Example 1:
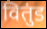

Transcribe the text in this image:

वितुंड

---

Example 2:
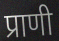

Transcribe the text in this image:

प्राणी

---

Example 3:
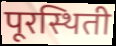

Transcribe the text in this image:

पूरस्थिती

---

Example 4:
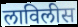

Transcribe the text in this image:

लाविलीस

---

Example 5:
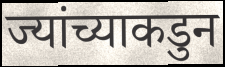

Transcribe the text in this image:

ज्यांच्याकडुन